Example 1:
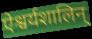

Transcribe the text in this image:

ऐश्वर्यशालिन्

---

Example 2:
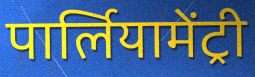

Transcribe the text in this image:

पार्लियामेंट्री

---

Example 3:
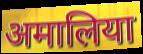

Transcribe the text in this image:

अमालिया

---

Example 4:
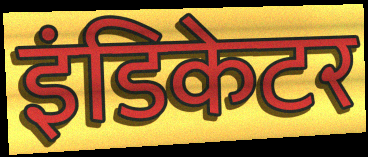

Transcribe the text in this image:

इंडिकेटर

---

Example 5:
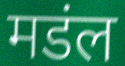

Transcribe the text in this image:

मडंल